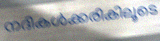
നദികൾക്കരികിലൂടെ